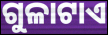
ଗୁଳାଟାଏ